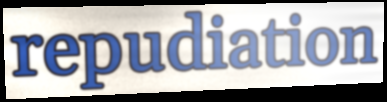
repudiation